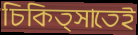
চিকিত্সাতেই